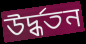
উর্দ্ধতন